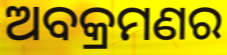
ଅବକ୍ରମଣର